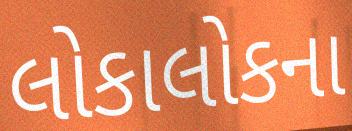
લોકાલોકના